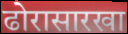
ढोरासारखा